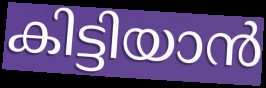
കിട്ടിയാൻ